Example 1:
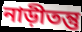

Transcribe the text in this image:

নাড়ীতন্তু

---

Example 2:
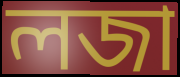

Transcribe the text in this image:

লজা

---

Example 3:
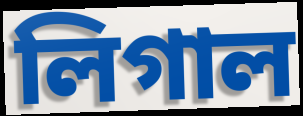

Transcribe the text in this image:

লিগাল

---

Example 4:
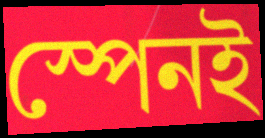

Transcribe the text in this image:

স্পেনই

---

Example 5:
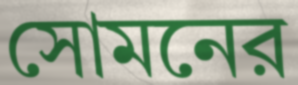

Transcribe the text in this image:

সোমনের